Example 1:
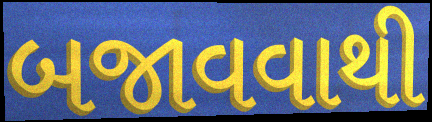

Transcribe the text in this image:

બજાવવાથી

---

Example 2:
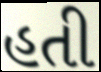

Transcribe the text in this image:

હતી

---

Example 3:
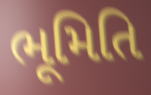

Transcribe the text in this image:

ભૂમિતિ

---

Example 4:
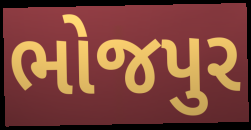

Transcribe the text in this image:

ભોજપુર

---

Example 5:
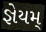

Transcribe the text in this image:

જ્ઞેયમ્